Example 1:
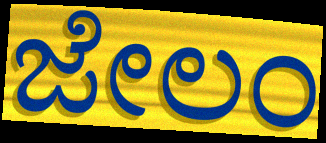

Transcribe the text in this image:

ಜೇಲಂ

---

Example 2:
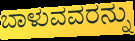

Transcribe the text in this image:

ಬಾಳುವವರನ್ನು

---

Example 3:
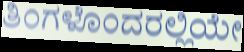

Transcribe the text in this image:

ತಿಂಗಳೊಂದರಲ್ಲಿಯೇ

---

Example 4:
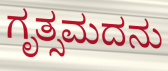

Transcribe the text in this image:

ಗೃತ್ಸಮದನು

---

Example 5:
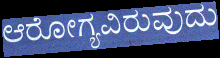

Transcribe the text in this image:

ಆರೋಗ್ಯವಿರುವುದು